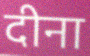
दीना